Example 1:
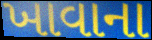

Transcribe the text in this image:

ખાવાના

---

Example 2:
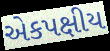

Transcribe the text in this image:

એકપક્ષીય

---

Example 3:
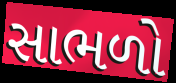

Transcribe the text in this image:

સાભળો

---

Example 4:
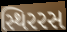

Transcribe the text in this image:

સ્થિરરસ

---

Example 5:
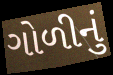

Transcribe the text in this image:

ગોળીનું